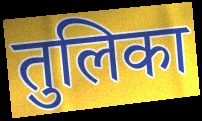
तुलिका